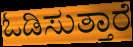
ಓಡಿಸುತ್ತಾರೆ